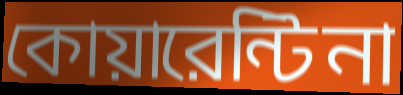
কোয়ারেন্টিনা